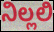
ನಿಲ್ಲಲಿ